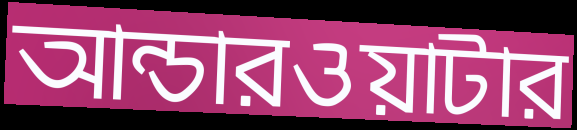
আন্ডারওয়াটার